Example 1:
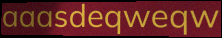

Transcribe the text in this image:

aaasdeqweqw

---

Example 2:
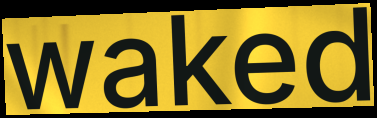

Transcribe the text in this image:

waked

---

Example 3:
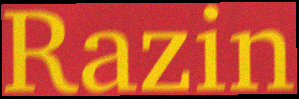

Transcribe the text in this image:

Razin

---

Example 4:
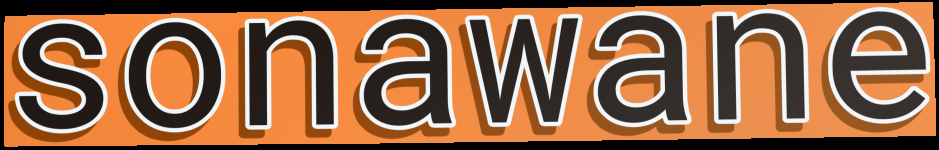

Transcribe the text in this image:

sonawane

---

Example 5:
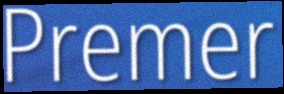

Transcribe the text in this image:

Premer